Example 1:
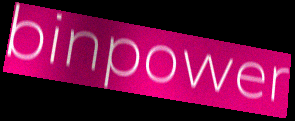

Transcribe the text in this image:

binpower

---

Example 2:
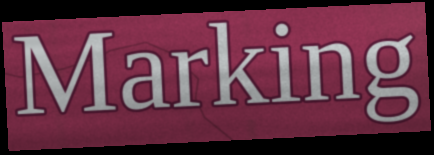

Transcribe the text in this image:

Marking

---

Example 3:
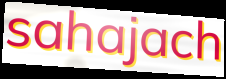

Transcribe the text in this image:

sahajach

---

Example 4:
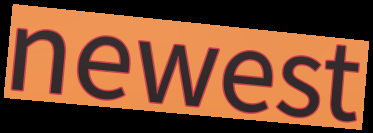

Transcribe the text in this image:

newest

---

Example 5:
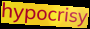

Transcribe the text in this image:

hypocrisy